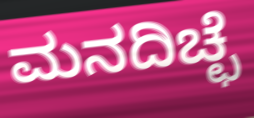
ಮನದಿಚ್ಛೆ